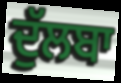
ਦੁੱਲਬਾ